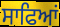
ਸਾਫਿਆਂ